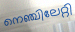
നെഞ്ചിലേറ്റി